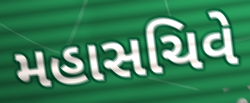
મહાસચિવે